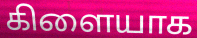
கிளையாக